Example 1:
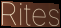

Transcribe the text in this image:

Rites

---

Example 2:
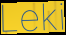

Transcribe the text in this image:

Leki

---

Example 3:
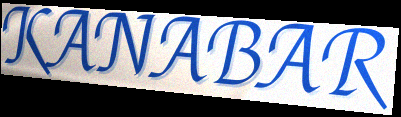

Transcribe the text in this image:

KANABAR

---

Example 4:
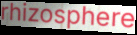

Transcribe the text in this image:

rhizosphere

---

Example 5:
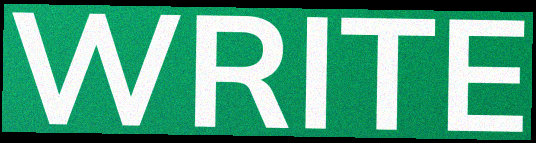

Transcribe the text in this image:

WRITE